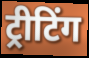
ट्रीटिंग